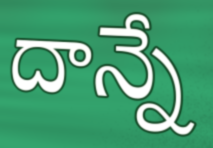
దాన్నే